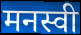
मनस्वी